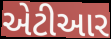
એટીઆર